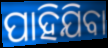
ପାହିଯିବା